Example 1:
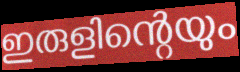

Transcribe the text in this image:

ഇരുളിന്റെയും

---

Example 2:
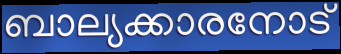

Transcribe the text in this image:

ബാല്യക്കാരനോട്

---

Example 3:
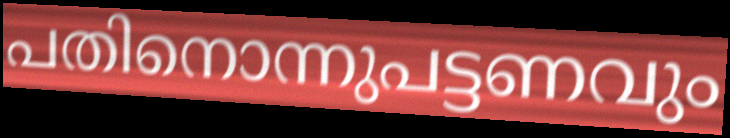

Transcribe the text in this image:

പതിനൊന്നുപട്ടണവും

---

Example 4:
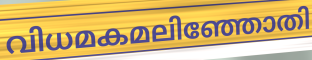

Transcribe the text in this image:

വിധമകമലിഞ്ഞോതി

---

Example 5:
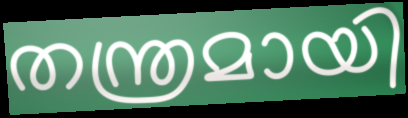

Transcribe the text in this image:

തന്ത്രമായി